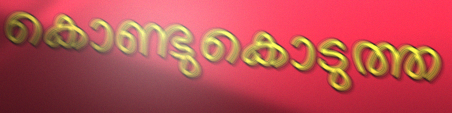
കൊണ്ടുകൊടുത്ത